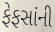
ફેફસાંની